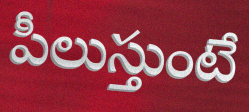
పీలుస్తుంటే